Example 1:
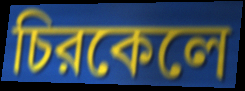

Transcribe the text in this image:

চিরকেলে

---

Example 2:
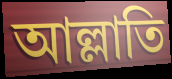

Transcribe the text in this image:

আল্লাতি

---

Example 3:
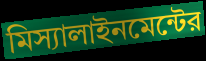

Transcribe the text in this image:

মিস্যালাইনমেন্টের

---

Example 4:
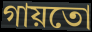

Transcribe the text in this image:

গায়তো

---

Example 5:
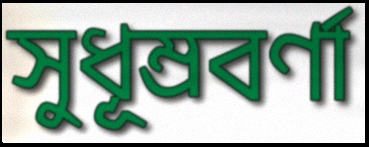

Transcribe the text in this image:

সুধূম্রবর্ণা